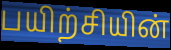
பயிற்சியின்